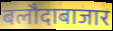
बलौदाबाजार